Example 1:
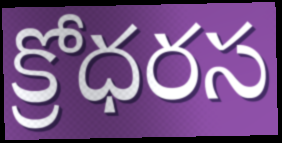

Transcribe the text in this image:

క్రోధరస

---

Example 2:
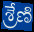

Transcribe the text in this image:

శ్రేణి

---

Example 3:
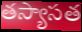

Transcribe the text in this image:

తస్యాసత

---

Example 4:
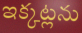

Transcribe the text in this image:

ఇక్కట్లను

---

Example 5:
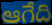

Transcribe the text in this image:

ఆగేది